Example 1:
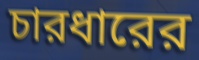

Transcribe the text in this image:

চারধারের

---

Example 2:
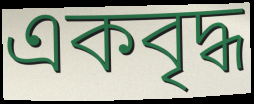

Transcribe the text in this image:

একবৃদ্ধ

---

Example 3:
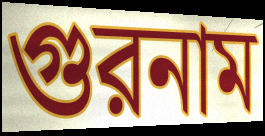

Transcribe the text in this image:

গুরনাম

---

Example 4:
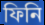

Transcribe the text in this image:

ফিনি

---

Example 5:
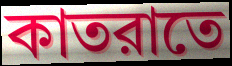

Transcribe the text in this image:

কাতরাতে